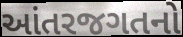
આંતરજગતનો